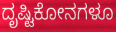
ದೃಷ್ಟಿಕೋನಗಳೂ